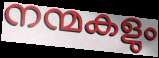
നന്മകളും